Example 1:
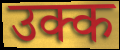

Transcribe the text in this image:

उक्क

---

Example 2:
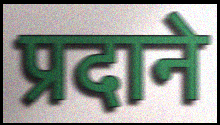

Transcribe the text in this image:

प्रदाने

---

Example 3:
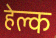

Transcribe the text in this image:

हेल्क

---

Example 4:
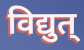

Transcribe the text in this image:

विद्युत्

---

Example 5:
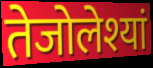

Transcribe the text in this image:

तेजोलेश्यां